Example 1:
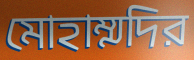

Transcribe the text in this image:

মোহাম্মদির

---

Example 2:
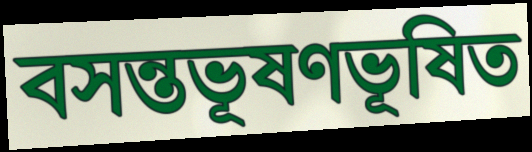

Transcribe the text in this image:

বসন্তভূষণভূষিত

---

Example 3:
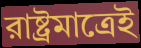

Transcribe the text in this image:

রাষ্ট্রমাত্রেই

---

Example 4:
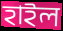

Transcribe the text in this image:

হাইল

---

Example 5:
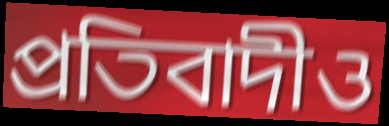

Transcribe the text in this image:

প্রতিবাদীও